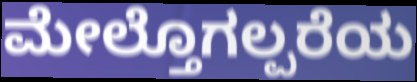
ಮೇಲ್ತೊಗಲ್ಪರೆಯ